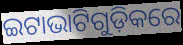
ଇଟାଭାଟିଗୁଡ଼ିକରେ